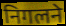
निगलने